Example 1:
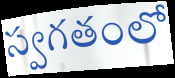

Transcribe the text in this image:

స్వగతంలో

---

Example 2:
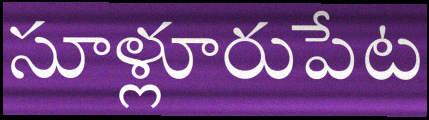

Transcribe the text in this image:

సూళ్లూరుపేట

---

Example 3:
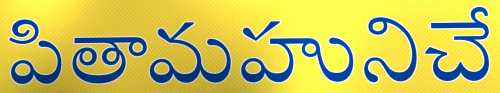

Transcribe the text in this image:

పితామహునిచే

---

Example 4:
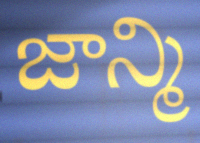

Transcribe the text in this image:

జాన్మి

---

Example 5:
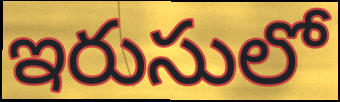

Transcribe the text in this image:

ఇరుసులో